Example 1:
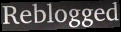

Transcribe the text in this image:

Reblogged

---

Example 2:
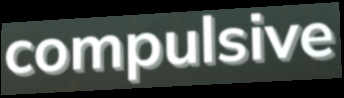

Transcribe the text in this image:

compulsive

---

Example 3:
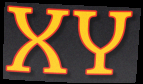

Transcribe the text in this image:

XY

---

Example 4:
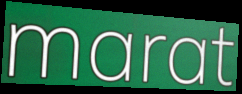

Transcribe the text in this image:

marat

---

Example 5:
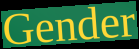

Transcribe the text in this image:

Gender